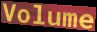
Volume